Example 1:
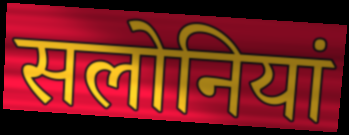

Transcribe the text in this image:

सलोनियां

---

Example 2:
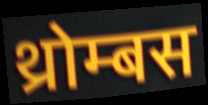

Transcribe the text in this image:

थ्रोम्बस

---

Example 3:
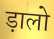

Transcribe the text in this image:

ड़ालो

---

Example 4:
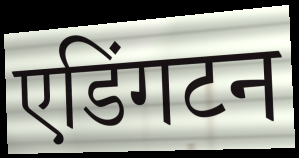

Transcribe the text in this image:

एडिंगटन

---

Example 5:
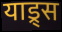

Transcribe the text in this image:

याड्र्स